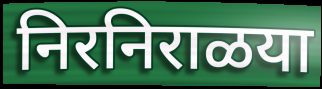
निरनिराळया